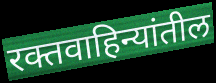
रक्तवाहिन्यांतील